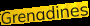
Grenadines